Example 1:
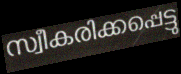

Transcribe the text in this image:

സ്വീകരിക്കപ്പെട്ടു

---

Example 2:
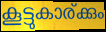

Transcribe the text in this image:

കൂട്ടുകാര്ക്കും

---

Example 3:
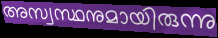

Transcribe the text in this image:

അസ്വസ്ഥനുമായിരുന്നു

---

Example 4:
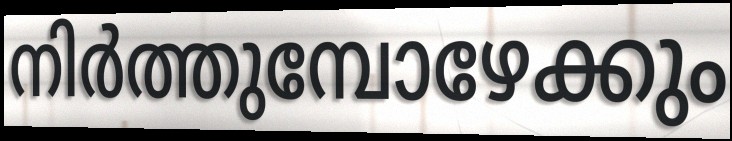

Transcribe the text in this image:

നിർത്തുമ്പോഴേക്കും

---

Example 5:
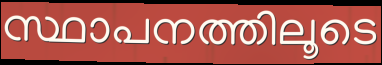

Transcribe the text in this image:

സ്ഥാപനത്തിലൂടെ